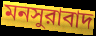
মনসুরাবাদ